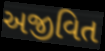
અજીવિત